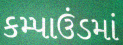
કમ્પાઉંડમાં